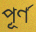
পূৰ্ণ